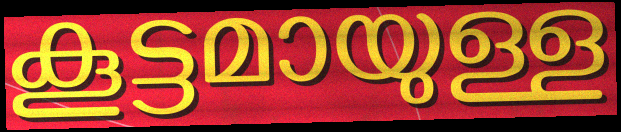
കൂട്ടമായുള്ള